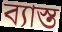
ব্যাস্ত